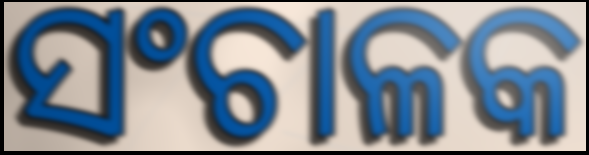
ସଂଚାଳକ